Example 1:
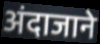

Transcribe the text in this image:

अंदाजाने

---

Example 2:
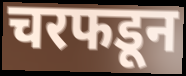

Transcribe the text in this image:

चरफडून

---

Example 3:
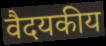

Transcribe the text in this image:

वैदयकीय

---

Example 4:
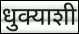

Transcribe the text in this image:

धुक्याशी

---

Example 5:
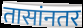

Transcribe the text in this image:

तासांनतर